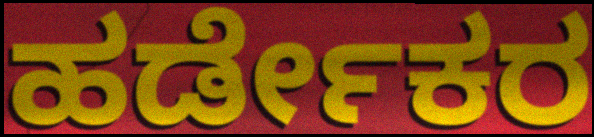
ಹರ್ಡೇಕರ